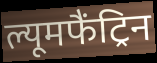
ल्यूमफैंट्रिन